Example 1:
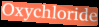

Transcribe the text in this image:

Oxychloride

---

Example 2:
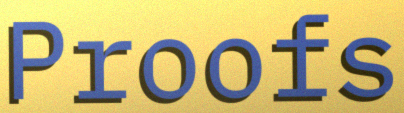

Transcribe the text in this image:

Proofs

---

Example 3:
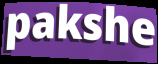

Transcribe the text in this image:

pakshe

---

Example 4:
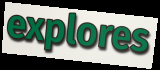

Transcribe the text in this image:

explores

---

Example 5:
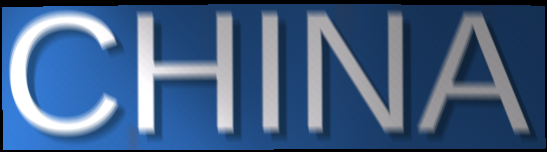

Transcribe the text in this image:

CHINA